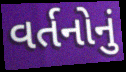
વર્તનોનું